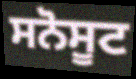
ਸਨੋਸੂਟ